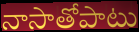
నాసాతోపాటు